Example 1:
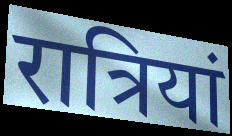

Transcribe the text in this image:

रात्रियां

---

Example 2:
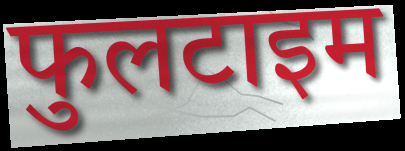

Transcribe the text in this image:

फुलटाइम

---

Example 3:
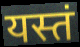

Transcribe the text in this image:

यस्तं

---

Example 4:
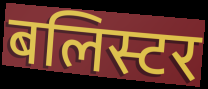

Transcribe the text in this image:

बलिस्टर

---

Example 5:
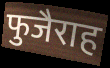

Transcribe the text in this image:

फुजैराह